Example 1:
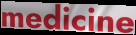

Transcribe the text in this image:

medicine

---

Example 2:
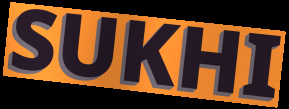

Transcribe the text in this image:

SUKHI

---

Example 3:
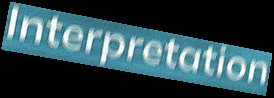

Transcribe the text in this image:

Interpretation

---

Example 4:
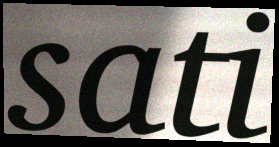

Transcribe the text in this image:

sati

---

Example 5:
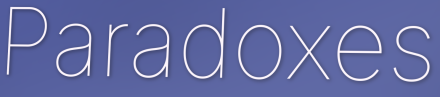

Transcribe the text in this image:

Paradoxes